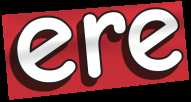
ere